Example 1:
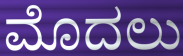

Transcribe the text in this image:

ಮೊದಲು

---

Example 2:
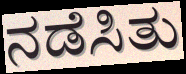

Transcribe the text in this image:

ನಡೆಸಿತು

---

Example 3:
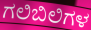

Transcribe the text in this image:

ಗಲಿಬಿಲಿಗಳ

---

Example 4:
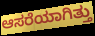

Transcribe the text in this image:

ಆಸರೆಯಾಗಿತ್ತು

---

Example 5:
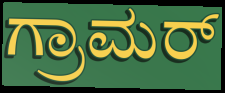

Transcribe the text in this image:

ಗ್ರಾಮರ್